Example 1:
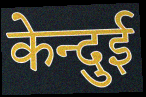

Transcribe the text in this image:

केन्दुई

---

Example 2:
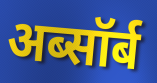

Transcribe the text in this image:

अब्सॉर्ब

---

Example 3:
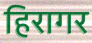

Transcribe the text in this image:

हिरागर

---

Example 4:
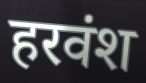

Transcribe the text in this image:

हरवंश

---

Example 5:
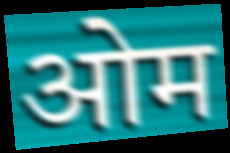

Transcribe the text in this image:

ओम